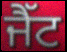
ਜੈੱਟ